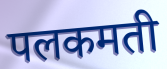
पलकमती